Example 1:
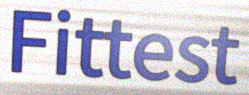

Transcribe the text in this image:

Fittest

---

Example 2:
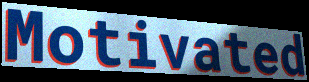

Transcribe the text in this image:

Motivated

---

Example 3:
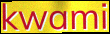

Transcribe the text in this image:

kwami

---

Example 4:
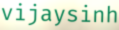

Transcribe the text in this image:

vijaysinh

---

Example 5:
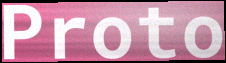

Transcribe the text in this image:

Proto